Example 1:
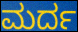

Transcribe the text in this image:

ಮರ್ದ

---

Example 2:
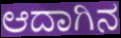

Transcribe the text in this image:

ಆದಾಗಿನ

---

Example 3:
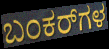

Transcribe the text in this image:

ಬಂಕರ್‌ಗಳ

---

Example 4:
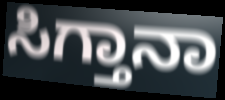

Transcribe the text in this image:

ಸಿಗ್ತಾನಾ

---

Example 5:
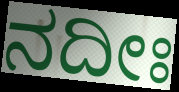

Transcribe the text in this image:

ನದೀಃ